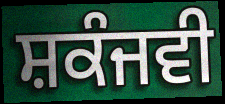
ਸ਼ਕੰਜਵੀ